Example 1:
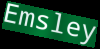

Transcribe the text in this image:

Emsley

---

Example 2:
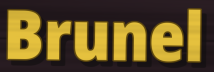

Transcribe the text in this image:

Brunel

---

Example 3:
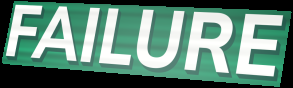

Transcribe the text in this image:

FAILURE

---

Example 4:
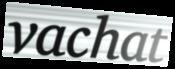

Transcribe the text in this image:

vachat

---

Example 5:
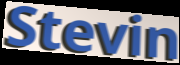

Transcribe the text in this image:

Stevin